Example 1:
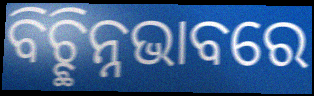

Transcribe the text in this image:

ବିଚ୍ଛିନ୍ନଭାବରେ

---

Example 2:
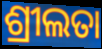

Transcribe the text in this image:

ଶ୍ରୀଲତା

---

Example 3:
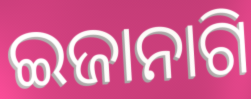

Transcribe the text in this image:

ଇଜାନାଗି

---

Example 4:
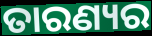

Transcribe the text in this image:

ତାରଣ୍ୟର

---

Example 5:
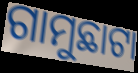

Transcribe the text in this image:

ଗାମୁଛାଟା